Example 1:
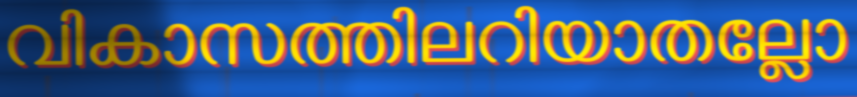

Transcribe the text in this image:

വികാസത്തിലറിയാതല്ലോ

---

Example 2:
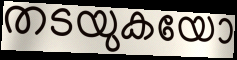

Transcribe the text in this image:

തടയുകയോ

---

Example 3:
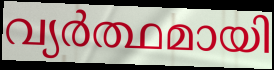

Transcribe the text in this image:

വ്യർത്ഥമായി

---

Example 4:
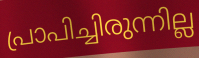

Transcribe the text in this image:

പ്രാപിച്ചിരുന്നില്ല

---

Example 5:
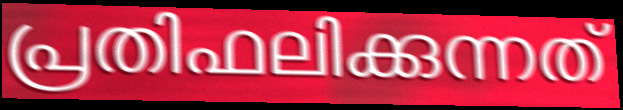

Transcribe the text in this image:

പ്രതിഫലിക്കുന്നത്